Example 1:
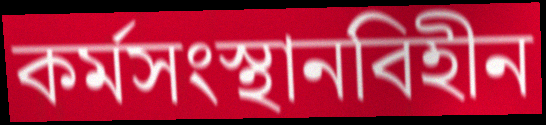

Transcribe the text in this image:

কর্মসংস্থানবিহীন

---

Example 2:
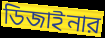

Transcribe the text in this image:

ডিজাইনার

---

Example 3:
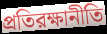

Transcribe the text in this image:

প্রতিরক্ষানীতি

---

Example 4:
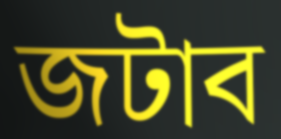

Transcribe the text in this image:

জটাব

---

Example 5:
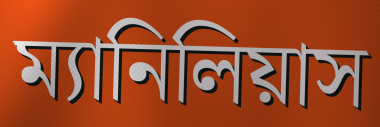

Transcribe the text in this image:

ম্যানিলিয়াস